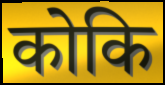
कोकि